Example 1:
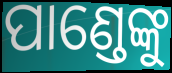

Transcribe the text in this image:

ପାଣ୍ଡେଙ୍କୁ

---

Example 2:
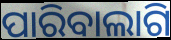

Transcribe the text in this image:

ପାରିବାଲାଗି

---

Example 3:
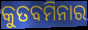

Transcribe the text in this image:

କୁତବମିନାର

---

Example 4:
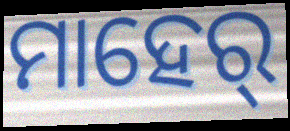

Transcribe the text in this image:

ମାହେର୍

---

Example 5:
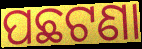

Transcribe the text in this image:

ପଛଟଣା